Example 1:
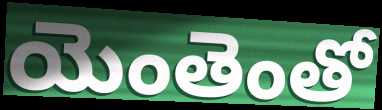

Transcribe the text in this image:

యెంతెంతో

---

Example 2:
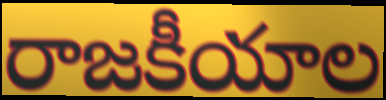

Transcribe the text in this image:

రాజకీయాల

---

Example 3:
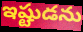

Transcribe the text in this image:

ఇష్టుడను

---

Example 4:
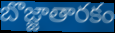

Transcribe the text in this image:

బొజ్జాతారకం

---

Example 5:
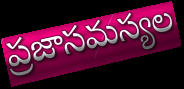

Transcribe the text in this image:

ప్రజాసమస్యల